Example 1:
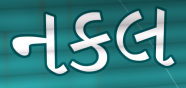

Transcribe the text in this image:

નકલ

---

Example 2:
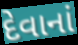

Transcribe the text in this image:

દેવાનાં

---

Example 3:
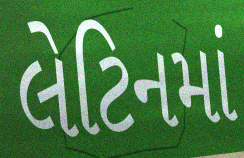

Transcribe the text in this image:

લેટિનમાં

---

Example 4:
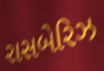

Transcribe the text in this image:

રાસબેરિઝ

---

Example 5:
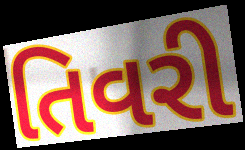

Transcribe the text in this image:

તિવરી